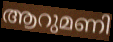
ആറുമണി